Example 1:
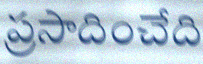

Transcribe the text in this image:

ప్రసాదించేది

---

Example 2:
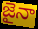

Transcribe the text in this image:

జైనా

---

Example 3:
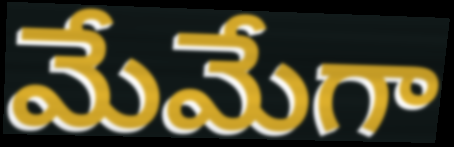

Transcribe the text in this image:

మేమేగా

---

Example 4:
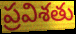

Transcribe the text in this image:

ప్రవిశతు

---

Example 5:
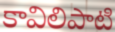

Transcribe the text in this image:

కావిలిపాటి